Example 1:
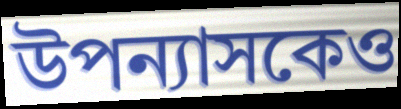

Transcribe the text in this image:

উপন্যাসকেও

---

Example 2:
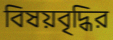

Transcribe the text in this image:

বিষয়বৃদ্ধির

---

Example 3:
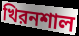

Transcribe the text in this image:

খিরনশাল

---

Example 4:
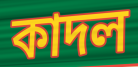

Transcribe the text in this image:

কাদল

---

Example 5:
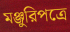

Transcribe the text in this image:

মঞ্জুরিপত্রে